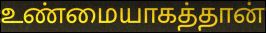
உண்மையாகத்தான்